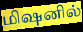
மிஷனில்